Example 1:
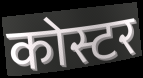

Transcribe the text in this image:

कोस्टर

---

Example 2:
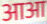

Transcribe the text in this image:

आआ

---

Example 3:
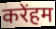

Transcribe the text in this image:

करेंहम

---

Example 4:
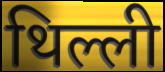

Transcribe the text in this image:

थिल्ली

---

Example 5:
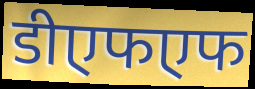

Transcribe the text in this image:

डीएफएफ